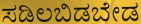
ಸಡಿಲಬಿಡಬೇಡ